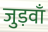
जुड़वाँ